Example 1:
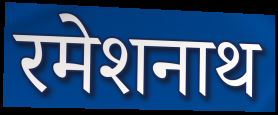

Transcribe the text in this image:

रमेशनाथ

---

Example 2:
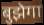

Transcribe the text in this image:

बुझेगा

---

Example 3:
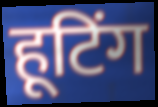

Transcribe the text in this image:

हूटिंग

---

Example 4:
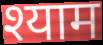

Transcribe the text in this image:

श्याम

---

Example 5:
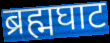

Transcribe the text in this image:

ब्रह्मघाट